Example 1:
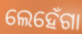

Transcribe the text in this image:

ଲେହେଁଗା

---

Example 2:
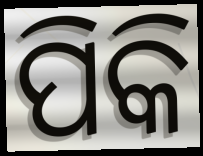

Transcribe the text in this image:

ପିକି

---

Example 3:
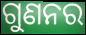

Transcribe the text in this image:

ଗୁଣନର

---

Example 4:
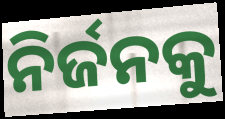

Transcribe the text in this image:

ନିର୍ଜନକୁ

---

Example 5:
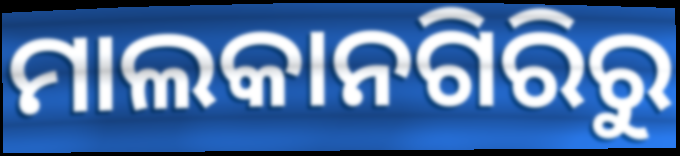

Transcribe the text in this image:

ମାଲକାନଗିରିରୁ